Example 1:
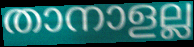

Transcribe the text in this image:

താനാളല്ല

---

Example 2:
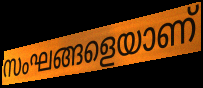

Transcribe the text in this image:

സംഘങ്ങളെയാണ്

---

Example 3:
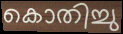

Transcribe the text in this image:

കൊതിച്ചു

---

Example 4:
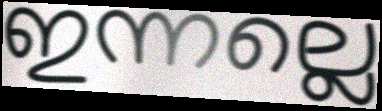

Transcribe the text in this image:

ഇന്നല്ലെ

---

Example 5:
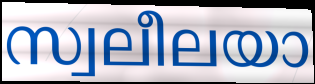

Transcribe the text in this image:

സ്വലീലയാ